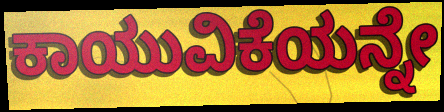
ಕಾಯುವಿಕೆಯನ್ನೇ